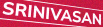
SRINIVASAN